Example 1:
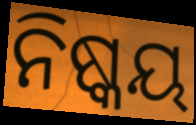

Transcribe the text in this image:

ନିଷ୍କୟ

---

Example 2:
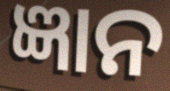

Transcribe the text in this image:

ଜ୍ଞାନ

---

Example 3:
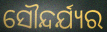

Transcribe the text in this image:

ସୌନ୍ଦର୍ଯ୍ୟର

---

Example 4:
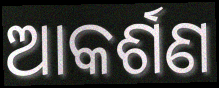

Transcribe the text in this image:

ଆକର୍ଶଣ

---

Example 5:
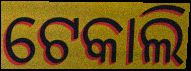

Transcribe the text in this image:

ଟେକାଲି